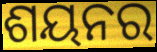
ଶୟନର